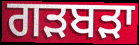
ਗੜਬੜਾ